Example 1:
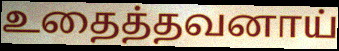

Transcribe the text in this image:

உதைத்தவனாய்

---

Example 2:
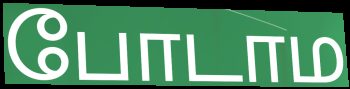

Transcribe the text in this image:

போடாம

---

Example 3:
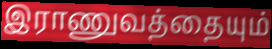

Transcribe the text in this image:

இராணுவத்தையும்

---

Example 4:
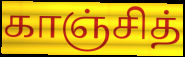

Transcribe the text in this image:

காஞ்சித்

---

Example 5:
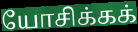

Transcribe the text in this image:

யோசிக்கக்